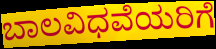
ಬಾಲವಿಧವೆಯರಿಗೆ